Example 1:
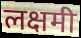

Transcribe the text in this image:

लक्षमी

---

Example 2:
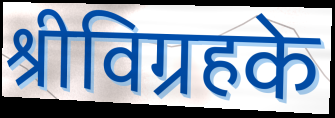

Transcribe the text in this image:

श्रीविग्रहके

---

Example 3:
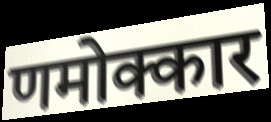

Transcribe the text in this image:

णमोक्कार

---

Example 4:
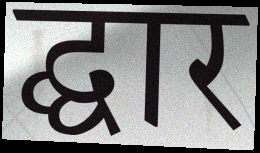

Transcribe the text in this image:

द्घार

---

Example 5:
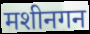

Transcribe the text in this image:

मशीनगन